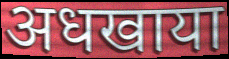
अधखाया